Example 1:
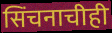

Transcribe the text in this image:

सिंचनाचीही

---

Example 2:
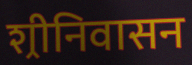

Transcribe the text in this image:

श्रीनिवासन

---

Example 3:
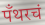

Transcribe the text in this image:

पँथरचं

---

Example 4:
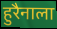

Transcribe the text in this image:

हुरैनाला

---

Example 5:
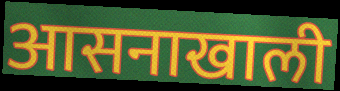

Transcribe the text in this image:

आसनाखाली